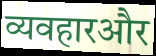
व्यवहारऔर